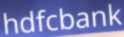
hdfcbank